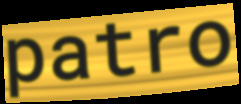
patro